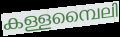
കള്ളമ്പൈലി